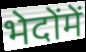
भेदोंमें